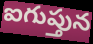
ఐగుప్తున